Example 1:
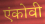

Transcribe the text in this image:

एंकोवी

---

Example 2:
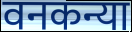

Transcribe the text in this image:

वनकन्या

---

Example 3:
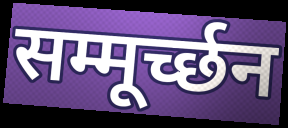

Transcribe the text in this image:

सम्मूर्च्छन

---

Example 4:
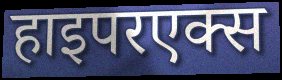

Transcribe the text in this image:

हाइपरएक्स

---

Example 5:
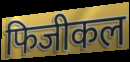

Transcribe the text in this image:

फिजीकल